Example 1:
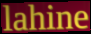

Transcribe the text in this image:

lahine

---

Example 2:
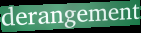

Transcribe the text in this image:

derangement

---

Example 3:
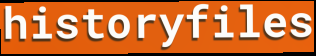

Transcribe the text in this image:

historyfiles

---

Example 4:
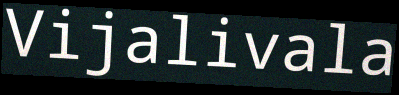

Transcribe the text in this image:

Vijalivala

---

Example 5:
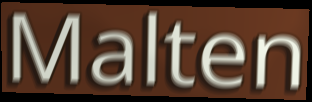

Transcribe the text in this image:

Malten